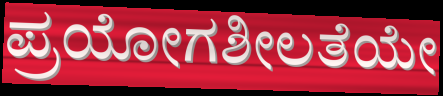
ಪ್ರಯೋಗಶೀಲತೆಯೇ